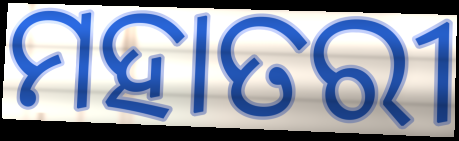
ମହାତରୀ